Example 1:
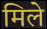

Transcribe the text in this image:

मिले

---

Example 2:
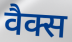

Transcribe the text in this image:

वैक्स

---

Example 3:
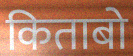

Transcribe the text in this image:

किताबो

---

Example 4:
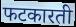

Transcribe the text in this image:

फटकारती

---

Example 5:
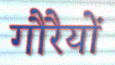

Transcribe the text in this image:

गौरैयों